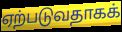
ஏற்படுவதாகக்